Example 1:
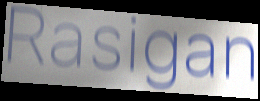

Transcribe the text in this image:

Rasigan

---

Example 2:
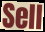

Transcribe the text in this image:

Sell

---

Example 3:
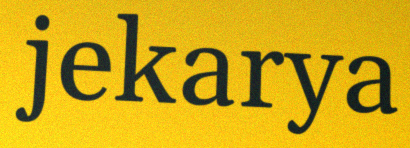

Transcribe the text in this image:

jekarya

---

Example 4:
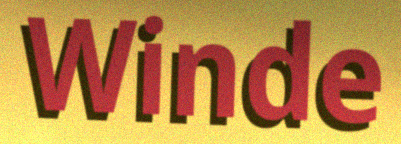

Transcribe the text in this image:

Winde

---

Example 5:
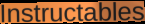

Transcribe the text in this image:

Instructables